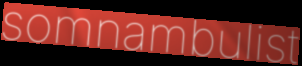
somnambulist